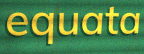
equata